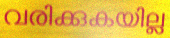
വരിക്കുകയില്ല